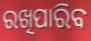
ରଖିପାରିବ